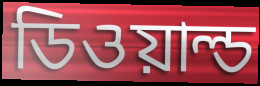
ডিওয়াল্ড